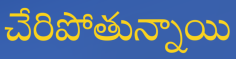
చేరిపోతున్నాయి